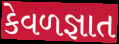
કેવળજ્ઞાત